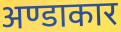
अण्डाकार